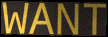
WANT